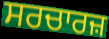
ਸਰਚਾਰਜ਼